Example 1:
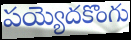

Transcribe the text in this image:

పయ్యెదకొంగు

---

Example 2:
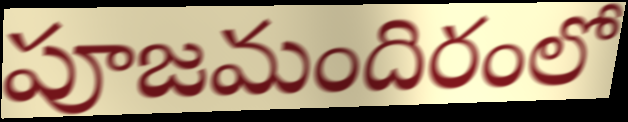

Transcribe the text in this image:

పూజమందిరంలో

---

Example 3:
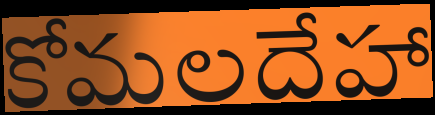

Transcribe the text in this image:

కోమలదేహా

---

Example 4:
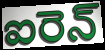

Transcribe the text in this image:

ఐరెన్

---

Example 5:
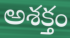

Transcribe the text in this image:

అశక్తం